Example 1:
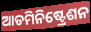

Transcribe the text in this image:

ଆଡମିନିଷ୍ଟ୍ରେଶନ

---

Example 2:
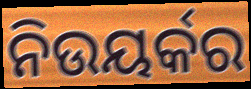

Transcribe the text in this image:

ନିଉୟର୍କର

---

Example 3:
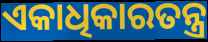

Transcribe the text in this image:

ଏକାଧିକାରତନ୍ତ୍ର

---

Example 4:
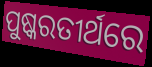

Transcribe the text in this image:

ପୁଷ୍କରତୀର୍ଥରେ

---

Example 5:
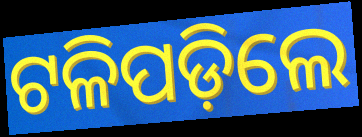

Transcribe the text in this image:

ଟଳିପଡ଼ିଲେ